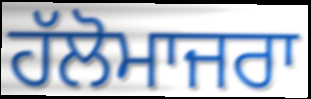
ਹੱਲੋਮਾਜਰਾ